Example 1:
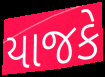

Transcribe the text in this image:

યાજકે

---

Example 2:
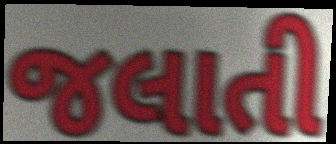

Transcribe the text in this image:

જલાતી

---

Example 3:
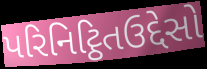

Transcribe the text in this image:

પરિનિટ્ઠિતઉદ્દેસો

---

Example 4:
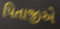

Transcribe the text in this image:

પિતાજીએ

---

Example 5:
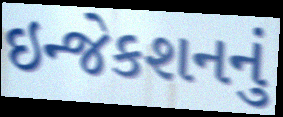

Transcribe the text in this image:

ઇન્જેકશનનું